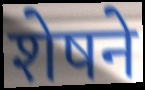
शेषने